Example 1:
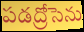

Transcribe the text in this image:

పడద్రోసెను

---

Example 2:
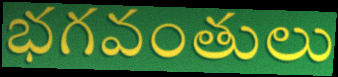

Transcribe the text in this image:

భగవంతులు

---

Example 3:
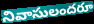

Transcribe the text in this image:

నివాసులందరూ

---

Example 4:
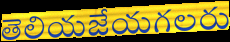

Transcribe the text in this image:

తెలియజేయగలరు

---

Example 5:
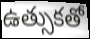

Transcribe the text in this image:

ఉత్సుకతో